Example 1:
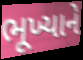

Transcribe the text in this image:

ભૂખ્યાને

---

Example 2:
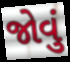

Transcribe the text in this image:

જોવું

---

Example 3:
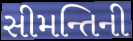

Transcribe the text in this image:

સીમન્તિની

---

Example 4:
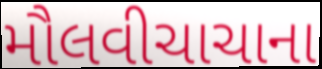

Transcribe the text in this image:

મૌલવીચાચાના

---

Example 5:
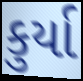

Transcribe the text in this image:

કુર્યા